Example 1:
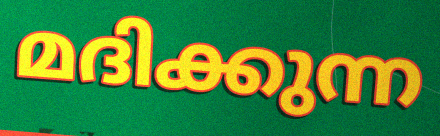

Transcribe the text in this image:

മദിക്കുന്ന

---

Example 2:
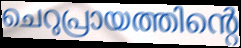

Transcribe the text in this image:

ചെറുപ്രായത്തിന്റെ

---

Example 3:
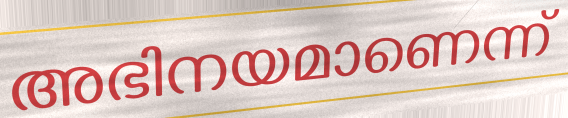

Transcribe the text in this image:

അഭിനയമാണെന്ന്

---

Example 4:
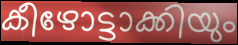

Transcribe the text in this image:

കീഴോട്ടാക്കിയും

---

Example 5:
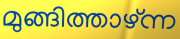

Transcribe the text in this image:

മുങ്ങിത്താഴ്ന്ന